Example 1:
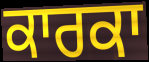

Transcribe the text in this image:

ਕਾਰਕਾ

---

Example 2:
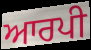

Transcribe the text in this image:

ਆਰਪੀ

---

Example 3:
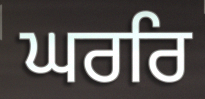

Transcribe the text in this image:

ਘਰਰਿ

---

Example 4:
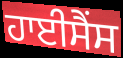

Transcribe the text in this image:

ਹਾਈਸੈਂਸ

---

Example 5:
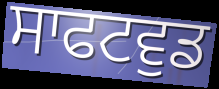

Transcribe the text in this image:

ਸਾਫਟਵੁਡ